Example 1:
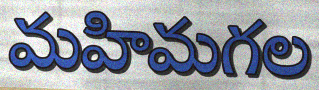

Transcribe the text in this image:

మహిమగల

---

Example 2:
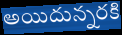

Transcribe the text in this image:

అయిదున్నరకి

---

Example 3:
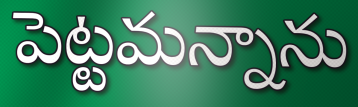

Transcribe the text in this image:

పెట్టమన్నాను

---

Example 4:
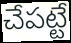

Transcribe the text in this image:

చేపట్టే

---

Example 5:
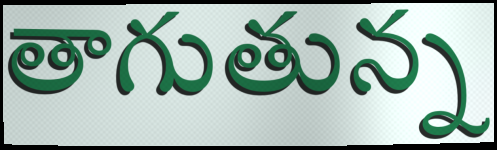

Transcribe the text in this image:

తాగుతున్న